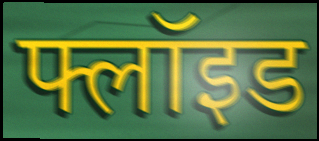
फ्लॉइड